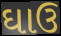
ઘાઉ